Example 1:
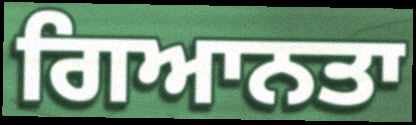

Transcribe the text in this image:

ਗਿਆਨਤਾ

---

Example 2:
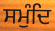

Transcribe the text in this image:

ਸਮੁੰਦਿ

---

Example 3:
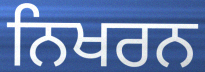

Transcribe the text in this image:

ਨਿਖਰਨ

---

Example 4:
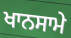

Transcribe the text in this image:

ਖਾਨਸਾਮੇ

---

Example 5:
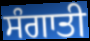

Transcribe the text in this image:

ਸੰਗਾਤੀ